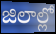
జిలాల్లో